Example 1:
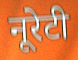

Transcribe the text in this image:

नूरेटी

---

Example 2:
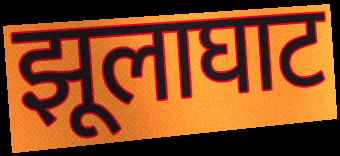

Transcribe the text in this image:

झूलाघाट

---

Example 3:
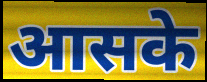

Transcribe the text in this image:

आसके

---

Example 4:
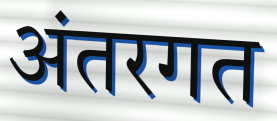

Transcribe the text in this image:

अंतरगत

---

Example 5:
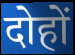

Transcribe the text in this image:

दोहों